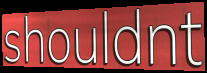
shouldnt